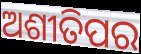
ଅଶୀତିପର